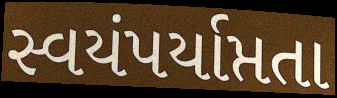
સ્વયંપર્યાપ્તતા